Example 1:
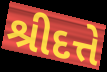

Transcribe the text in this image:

શ્રીદત્તે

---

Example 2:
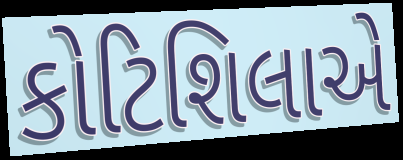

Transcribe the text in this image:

કોટિશિલાએ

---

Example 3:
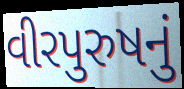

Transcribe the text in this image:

વીરપુરુષનું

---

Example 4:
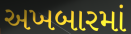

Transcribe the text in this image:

અખબારમાં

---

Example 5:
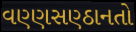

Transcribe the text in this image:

વણ્ણસણ્ઠાનતો